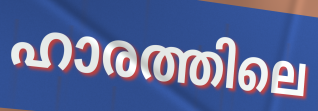
ഹാരത്തിലെ